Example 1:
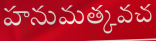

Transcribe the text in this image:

హనుమత్కవచ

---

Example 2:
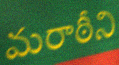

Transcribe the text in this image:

మరాఠీని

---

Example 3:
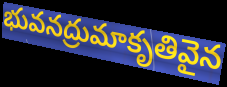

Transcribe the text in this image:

భువనద్రుమాకృతివైన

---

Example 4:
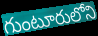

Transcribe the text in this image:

గుంటూరులోని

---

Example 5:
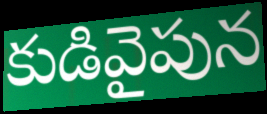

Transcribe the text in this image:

కుడివైపున